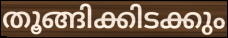
തൂങ്ങിക്കിടക്കും